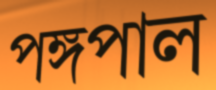
পঙ্গপাল